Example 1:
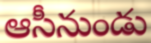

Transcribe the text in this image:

ఆసీనుండు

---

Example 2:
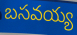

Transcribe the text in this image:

బసవయ్య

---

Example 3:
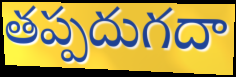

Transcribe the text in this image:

తప్పదుగదా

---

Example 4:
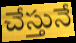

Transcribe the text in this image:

చేస్తునే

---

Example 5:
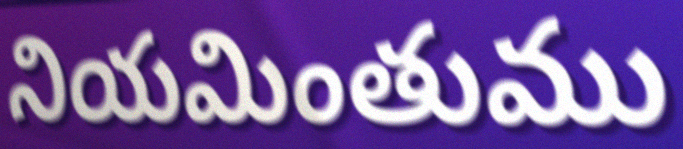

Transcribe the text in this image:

నియమింతుము